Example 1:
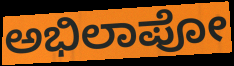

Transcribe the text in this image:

ಅಭಿಲಾಪೋ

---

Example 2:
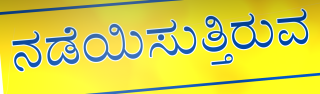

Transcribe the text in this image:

ನಡೆಯಿಸುತ್ತಿರುವ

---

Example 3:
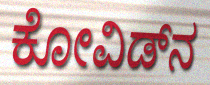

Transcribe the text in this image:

ಕೋವಿಡ್‌ನ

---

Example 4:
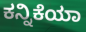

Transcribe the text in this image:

ಕನ್ನಿಕೆಯಾ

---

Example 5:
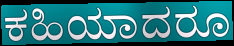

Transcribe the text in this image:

ಕಹಿಯಾದರೂ